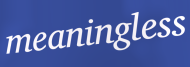
meaningless